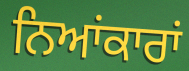
ਨਿਆਂਕਾਰਾਂ